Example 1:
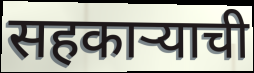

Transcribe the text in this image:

सहकाऱ्याची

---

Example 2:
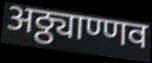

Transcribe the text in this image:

अठ्ठ्याण्णव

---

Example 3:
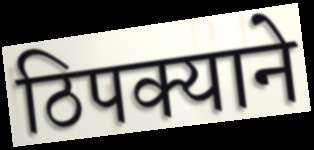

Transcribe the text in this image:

ठिपक्याने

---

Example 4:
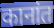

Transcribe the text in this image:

कानांत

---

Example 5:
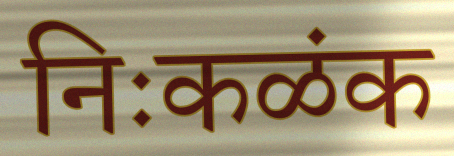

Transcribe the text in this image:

निःकळंक